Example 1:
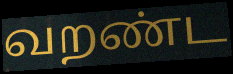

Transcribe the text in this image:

வறண்ட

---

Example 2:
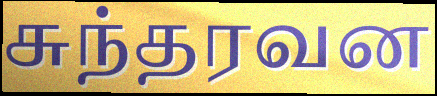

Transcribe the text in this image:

சுந்தரவன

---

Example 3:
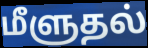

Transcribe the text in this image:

மீளுதல்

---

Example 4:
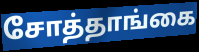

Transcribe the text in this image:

சோத்தாங்கை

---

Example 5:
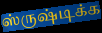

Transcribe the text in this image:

ஸ்ருஷ்டிக்க